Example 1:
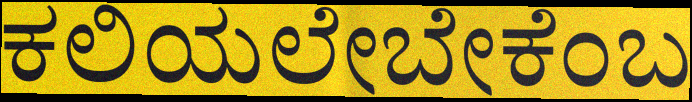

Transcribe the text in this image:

ಕಲಿಯಲೇಬೇಕೆಂಬ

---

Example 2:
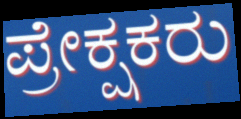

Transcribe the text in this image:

ಪ್ರೇಕ್ಷಕರು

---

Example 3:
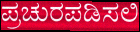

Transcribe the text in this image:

ಪ್ರಚುರಪಡಿಸಲಿ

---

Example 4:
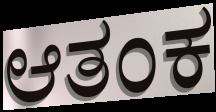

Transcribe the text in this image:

ಆತಂಕ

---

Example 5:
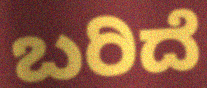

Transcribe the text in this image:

ಬರಿದೆ